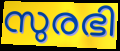
സുരഭി